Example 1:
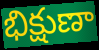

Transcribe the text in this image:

భిక్షుణా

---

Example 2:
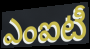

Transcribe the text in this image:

ఎంఐటీ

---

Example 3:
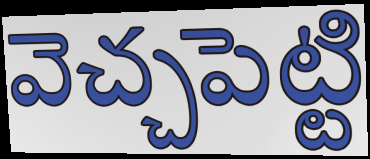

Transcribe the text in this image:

వెచ్చపెట్టి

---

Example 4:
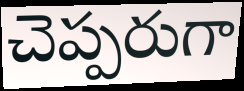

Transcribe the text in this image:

చెప్పరుగా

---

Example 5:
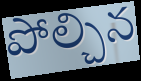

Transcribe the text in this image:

పోల్చిన